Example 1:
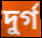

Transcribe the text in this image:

দুৰ্গ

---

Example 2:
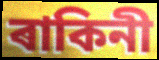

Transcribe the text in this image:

ৰাকিনী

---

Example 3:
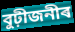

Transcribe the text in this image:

বুঢ়ীজনীৰ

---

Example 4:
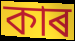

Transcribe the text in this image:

কাৰ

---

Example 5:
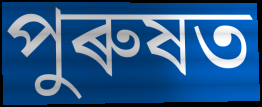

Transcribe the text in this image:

পুৰুষত